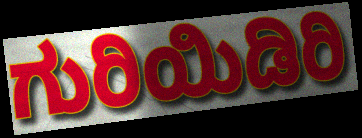
ಗುರಿಯಿಡಿರಿ